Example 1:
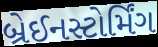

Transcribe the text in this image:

બ્રેઈનસ્ટોર્મિંગ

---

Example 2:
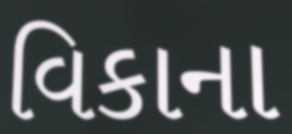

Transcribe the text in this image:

વિકાના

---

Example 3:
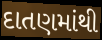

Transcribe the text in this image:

દાતણમાંથી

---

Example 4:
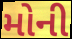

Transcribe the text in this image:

મોની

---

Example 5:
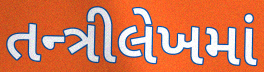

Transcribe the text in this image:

તન્ત્રીલેખમાં